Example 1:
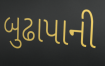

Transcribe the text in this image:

બુઢાપાની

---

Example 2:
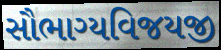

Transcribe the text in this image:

સૌભાગ્યવિજયજી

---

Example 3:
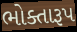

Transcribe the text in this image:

ભોક્તારૂપ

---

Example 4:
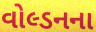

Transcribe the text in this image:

વોલ્ડનના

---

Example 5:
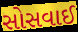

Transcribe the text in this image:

સોસવાઈ